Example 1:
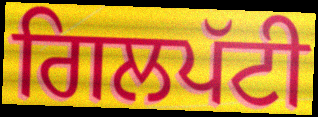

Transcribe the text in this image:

ਗਿਲਪੱਟੀ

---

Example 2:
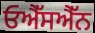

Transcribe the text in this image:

ਓਐੱਸਐੱਨ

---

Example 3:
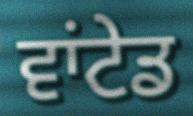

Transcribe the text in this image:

ਵਾਂਟੇਡ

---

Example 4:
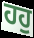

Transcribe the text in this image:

ਹਹੁ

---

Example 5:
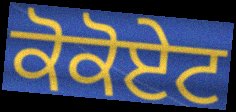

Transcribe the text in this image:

ਕੋਕੋਏਟ